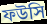
ফউসি